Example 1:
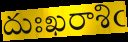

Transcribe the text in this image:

దుఃఖరాశిఁ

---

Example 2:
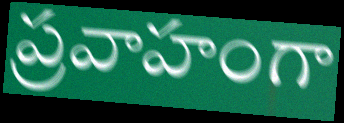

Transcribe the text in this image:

ప్రవాహంగా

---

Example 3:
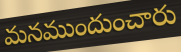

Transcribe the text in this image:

మనముందుంచారు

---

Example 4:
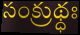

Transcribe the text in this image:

సంక్రుథ్ధః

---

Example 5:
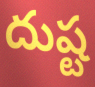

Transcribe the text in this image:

దుష్ట